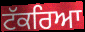
ਟੱਕਰਿਆ